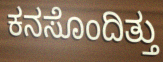
ಕನಸೊಂದಿತ್ತು